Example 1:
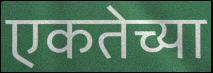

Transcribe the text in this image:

एकतेच्या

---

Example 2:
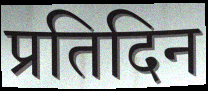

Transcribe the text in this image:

प्रतिदिन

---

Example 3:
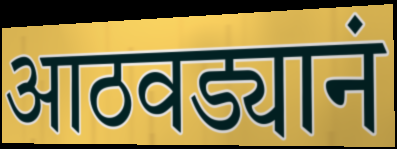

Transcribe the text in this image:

आठवड्यानं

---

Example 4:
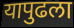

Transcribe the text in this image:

यापुढला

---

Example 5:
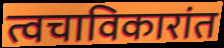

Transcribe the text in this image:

त्वचाविकारांत